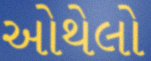
ઓથેલો